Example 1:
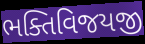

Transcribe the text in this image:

ભક્તિવિજયજી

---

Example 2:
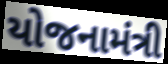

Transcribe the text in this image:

યોજનામંત્રી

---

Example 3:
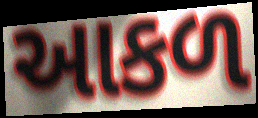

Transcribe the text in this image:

આકળ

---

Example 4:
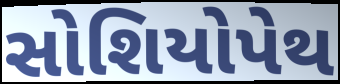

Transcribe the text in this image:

સોશિયોપેથ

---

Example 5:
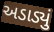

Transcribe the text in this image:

અડાડ્યું